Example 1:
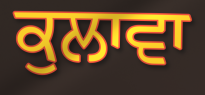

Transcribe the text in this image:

ਕੁਲਾਵਾ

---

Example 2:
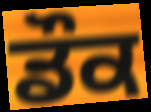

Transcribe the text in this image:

ਡੌਕ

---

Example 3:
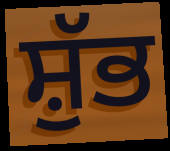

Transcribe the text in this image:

ਸ਼ੁੱਭ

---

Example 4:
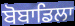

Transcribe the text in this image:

ਬੋਬਾਡਿਲਾ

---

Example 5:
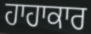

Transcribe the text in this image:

ਹਾਹਾਕਾਰ